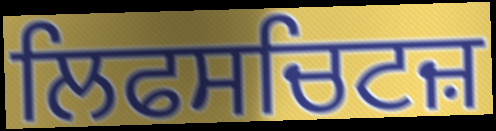
ਲਿਫਸਚਿਟਜ਼